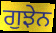
ਗੁਝੇਨ